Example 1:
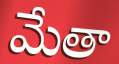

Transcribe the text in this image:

మేతా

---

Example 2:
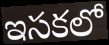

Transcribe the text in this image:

ఇసకలో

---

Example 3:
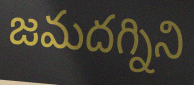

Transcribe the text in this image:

జమదగ్నిని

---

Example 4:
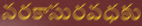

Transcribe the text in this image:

నరకాసురవధకు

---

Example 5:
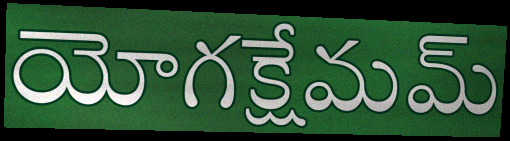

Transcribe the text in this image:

యోగక్షేమమ్